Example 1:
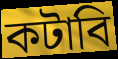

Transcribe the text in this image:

কটাবি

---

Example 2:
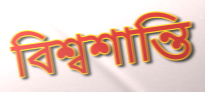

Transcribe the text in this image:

বিশ্বশান্তি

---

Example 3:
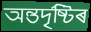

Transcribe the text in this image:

অন্তৰ্দৃষ্টিৰ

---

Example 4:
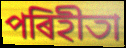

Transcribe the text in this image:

পৰিহীতা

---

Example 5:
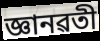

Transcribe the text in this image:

জ্ঞানৱতী